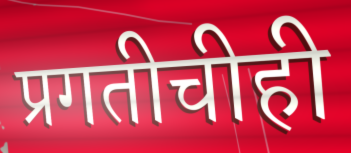
प्रगतीचीही